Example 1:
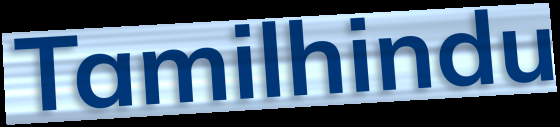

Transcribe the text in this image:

Tamilhindu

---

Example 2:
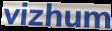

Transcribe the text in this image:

vizhum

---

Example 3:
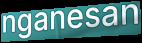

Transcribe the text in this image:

nganesan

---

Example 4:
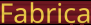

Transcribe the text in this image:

Fabrica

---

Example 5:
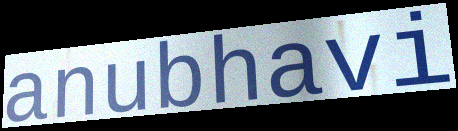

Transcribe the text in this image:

anubhavi